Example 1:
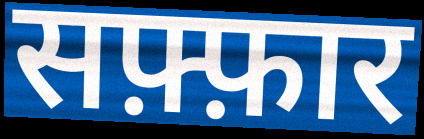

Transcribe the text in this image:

सफ़्फ़ार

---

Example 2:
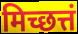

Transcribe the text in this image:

मिच्छत्तं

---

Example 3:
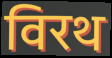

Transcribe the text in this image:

विरथ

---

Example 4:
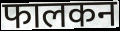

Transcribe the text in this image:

फालकन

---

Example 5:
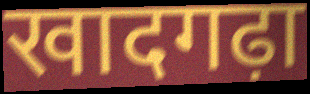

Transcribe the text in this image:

खादगढ़ा